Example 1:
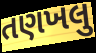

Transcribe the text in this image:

તણખલુ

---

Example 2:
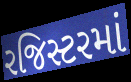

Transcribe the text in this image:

રજિસ્ટરમાં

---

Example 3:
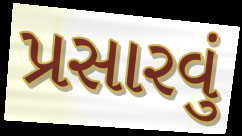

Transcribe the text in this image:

પ્રસારવું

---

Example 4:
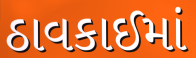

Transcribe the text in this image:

ઠાવકાઈમાં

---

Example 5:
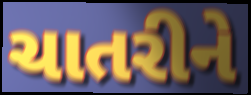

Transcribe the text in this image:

ચાતરીને